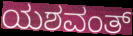
ಯಶವಂತ್